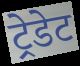
ट्रेडेट